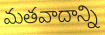
మతవాదాన్ని